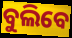
ବୁଲିବେ